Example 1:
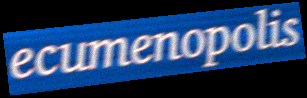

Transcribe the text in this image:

ecumenopolis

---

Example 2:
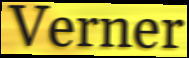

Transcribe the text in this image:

Verner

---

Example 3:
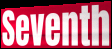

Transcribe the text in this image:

Seventh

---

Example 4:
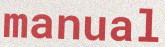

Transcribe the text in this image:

manual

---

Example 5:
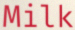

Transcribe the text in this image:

Milk